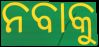
ନବାକୁ